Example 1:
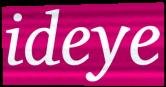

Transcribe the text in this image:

ideye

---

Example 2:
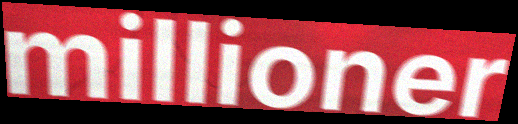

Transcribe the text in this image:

millioner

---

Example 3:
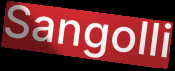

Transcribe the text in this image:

Sangolli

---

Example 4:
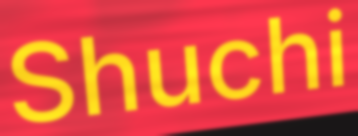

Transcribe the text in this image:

Shuchi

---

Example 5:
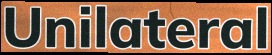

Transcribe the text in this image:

Unilateral